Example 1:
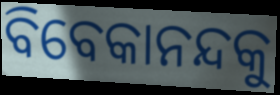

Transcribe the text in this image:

ବିବେକାନନ୍ଦକୁ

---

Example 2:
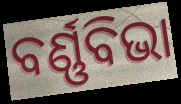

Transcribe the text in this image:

ବର୍ଣ୍ଣବିଭା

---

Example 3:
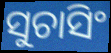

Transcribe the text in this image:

ସୁଚାସିଂ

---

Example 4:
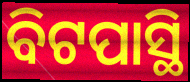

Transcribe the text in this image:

ବିଟପାସ୍ଥି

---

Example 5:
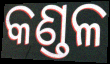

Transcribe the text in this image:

କଣ୍ଡଳ